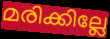
മരിക്കില്ലേ